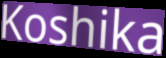
Koshika